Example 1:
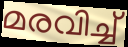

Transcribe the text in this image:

മരവിച്ച്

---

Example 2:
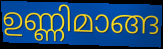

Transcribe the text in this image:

ഉണ്ണിമാങ്ങ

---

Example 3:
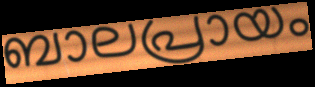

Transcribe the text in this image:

ബാലപ്രായം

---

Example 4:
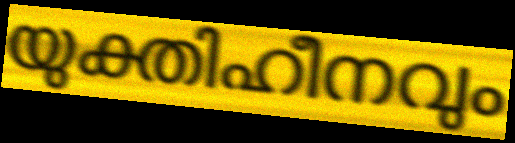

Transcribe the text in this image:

യുക്തിഹീനവും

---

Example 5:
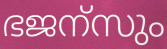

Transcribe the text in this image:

ഭജന്സും